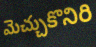
మెచ్చుకొనిరి